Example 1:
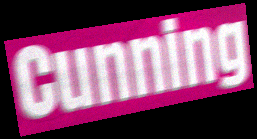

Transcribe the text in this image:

Cunning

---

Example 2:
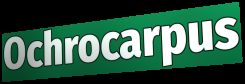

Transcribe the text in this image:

Ochrocarpus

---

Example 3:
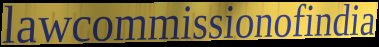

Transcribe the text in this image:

lawcommissionofindia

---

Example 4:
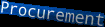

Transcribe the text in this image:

Procurement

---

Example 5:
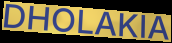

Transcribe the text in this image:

DHOLAKIA